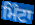
ਮਿੰਟਾ